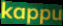
kappu